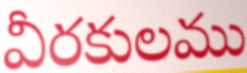
వీరకులము